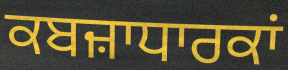
ਕਬਜ਼ਾਧਾਰਕਾਂ